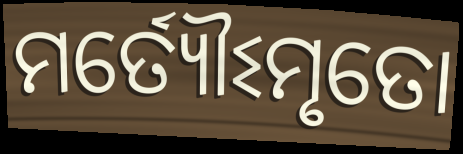
ମର୍ତ୍ୟୌଽମୃତୋ